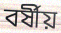
বৰ্ষীয়